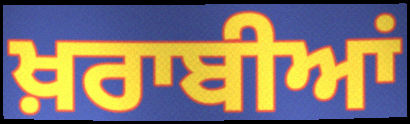
ਖ਼ਰਾਬੀਆਂ